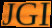
JGI